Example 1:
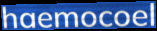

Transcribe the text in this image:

haemocoel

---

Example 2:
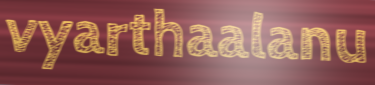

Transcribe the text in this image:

vyarthaalanu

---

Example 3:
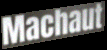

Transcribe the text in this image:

Machaut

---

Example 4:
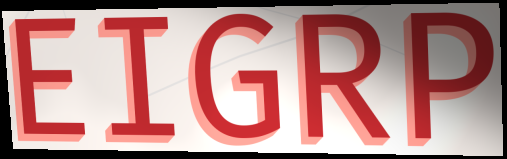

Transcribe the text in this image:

EIGRP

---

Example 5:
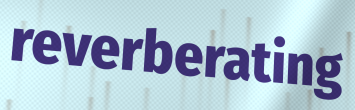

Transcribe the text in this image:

reverberating